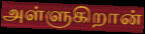
அள்ளுகிறான்